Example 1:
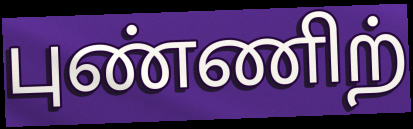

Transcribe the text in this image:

புண்ணிற்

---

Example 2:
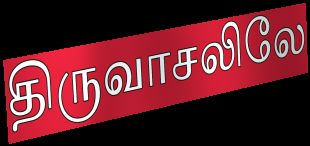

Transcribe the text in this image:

திருவாசலிலே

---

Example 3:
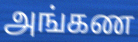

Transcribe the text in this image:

அங்கண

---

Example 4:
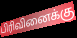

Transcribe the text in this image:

பிரிவினைக்கு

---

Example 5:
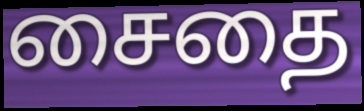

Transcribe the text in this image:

சைதை